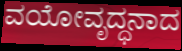
ವಯೋವೃದ್ಧನಾದ